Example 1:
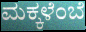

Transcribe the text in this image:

ಮಕ್ಕಳೆಂಬೆ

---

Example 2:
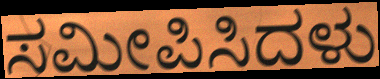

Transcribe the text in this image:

ಸಮೀಪಿಸಿದಳು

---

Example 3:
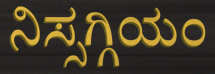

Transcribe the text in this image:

ನಿಸ್ಸಗ್ಗಿಯಂ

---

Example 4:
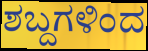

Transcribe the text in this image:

ಶಬ್ದಗಳಿಂದ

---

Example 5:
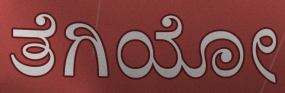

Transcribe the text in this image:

ತೆಗಿಯೋ